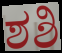
ಶಶಿ